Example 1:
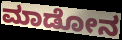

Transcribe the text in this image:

ಮಾಡೋನ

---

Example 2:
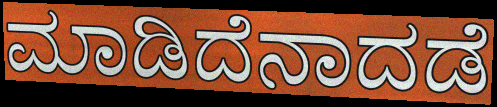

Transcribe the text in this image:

ಮಾಡಿದೆನಾದಡೆ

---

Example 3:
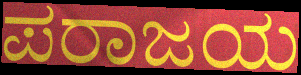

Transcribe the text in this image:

ಪರಾಜಯ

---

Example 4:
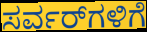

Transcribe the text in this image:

ಸರ್ವರ್‌ಗಳಿಗೆ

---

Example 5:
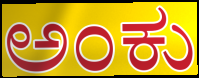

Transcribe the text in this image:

ಅಂಕು